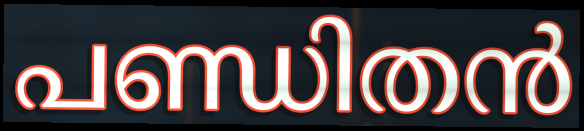
പണ്ഡിതൻ